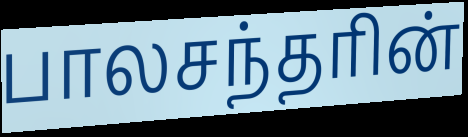
பாலசந்தரின்